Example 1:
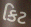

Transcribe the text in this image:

કિટ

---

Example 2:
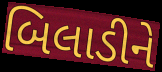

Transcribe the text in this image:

બિલાડીને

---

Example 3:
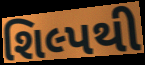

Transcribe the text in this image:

શિલ્પથી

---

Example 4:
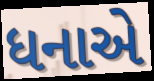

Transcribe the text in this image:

ધનાએ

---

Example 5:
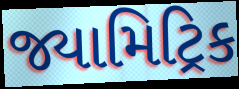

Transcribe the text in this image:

જ્યામિટ્રિક